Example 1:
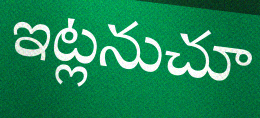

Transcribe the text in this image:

ఇట్లనుచూ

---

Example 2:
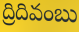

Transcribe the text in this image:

ద్రిదివంబు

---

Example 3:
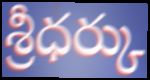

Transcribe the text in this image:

శ్రీధర్కు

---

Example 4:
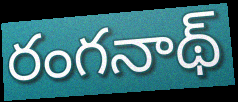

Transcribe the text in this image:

రంగనాథ్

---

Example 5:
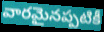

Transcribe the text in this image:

వారమైనప్పటికీ